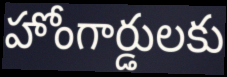
హోంగార్డులకు